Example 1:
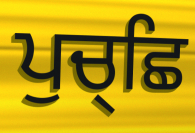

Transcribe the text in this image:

ਪੁਚ੍ਛਿ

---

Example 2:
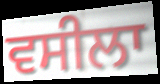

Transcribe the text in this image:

ਵਸੀਲਾ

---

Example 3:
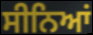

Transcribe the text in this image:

ਸੀਨਿਆਂ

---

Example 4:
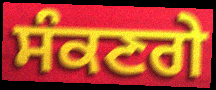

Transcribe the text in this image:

ਸੰਕਣਗੇ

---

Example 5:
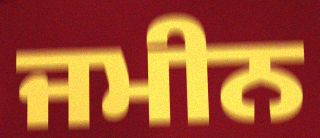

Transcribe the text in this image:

ਜਮੀਨ